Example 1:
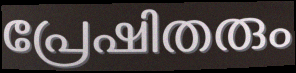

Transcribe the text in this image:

പ്രേഷിതരും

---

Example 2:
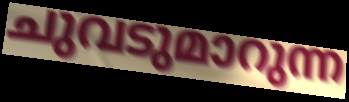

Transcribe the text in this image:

ചുവടുമാറുന്ന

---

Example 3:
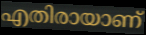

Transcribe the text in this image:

എതിരായാണ്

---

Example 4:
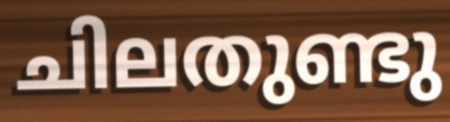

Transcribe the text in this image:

ചിലതുണ്ടു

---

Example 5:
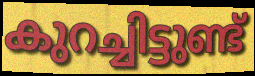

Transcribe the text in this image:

കുറച്ചിട്ടുണ്ട്